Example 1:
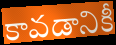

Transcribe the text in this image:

కావడానికీ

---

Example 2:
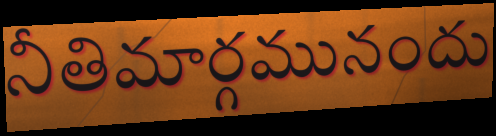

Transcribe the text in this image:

నీతిమార్గమునందు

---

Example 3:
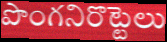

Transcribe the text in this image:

పొంగనిరొట్టెలు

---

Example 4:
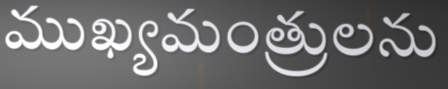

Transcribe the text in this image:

ముఖ్యమంత్రులను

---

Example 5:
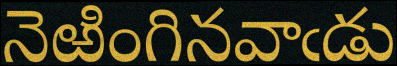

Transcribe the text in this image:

నెఱింగినవాఁడు